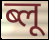
ब्लू